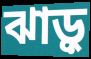
ঝাড়ু